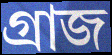
গ্ৰাজ